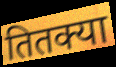
तितक्या